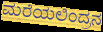
ಮರೆಯಲಿಂದ್ರನ